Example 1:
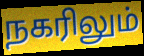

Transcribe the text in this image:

நகரிலும்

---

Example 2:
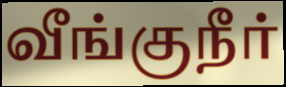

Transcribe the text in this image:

வீங்குநீர்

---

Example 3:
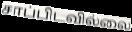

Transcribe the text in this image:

சாப்பிடவில்லை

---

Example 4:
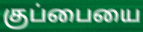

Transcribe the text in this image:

குப்பையை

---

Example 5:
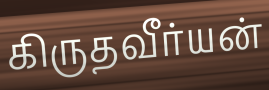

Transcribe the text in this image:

கிருதவீர்யன்